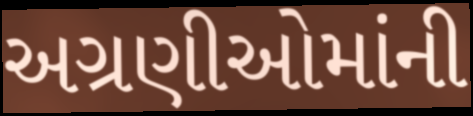
અગ્રણીઓમાંની